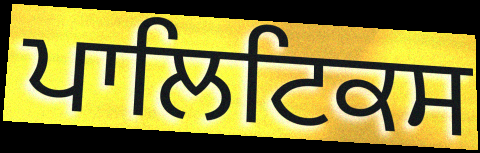
ਪਾਲਿਟਿਕਸ